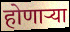
होणार्‍या